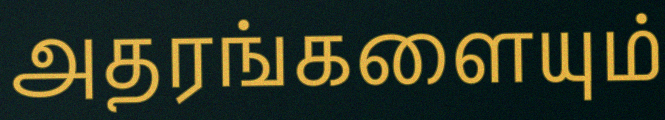
அதரங்களையும்